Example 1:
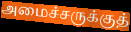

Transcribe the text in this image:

அமைச்சருக்குத்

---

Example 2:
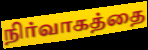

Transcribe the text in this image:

நிர்வாகத்தை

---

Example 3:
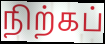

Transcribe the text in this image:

நிற்கப்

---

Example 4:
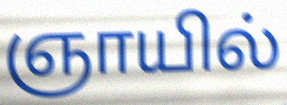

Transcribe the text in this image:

ஞாயில்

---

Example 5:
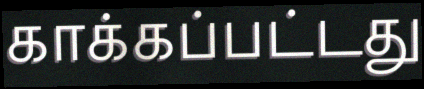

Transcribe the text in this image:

காக்கப்பட்டது